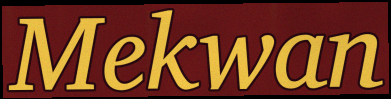
Mekwan